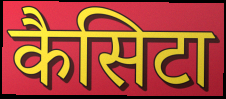
कैसिटा